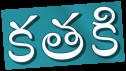
కతకి